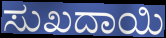
ಸುಖದಾಯಿ